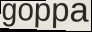
goppa